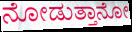
ನೋಡುತ್ತಾನೋ